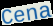
Cena